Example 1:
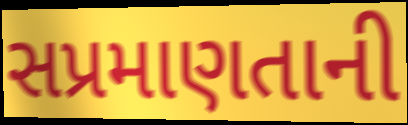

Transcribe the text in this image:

સપ્રમાણતાની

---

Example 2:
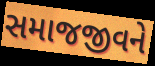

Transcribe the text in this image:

સમાજજીવને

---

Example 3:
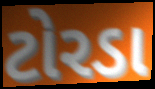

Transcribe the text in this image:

ટોરડા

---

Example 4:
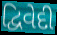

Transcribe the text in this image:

દ્વિવેદી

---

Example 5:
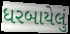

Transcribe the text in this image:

ધરબાયેલું